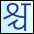
श्च